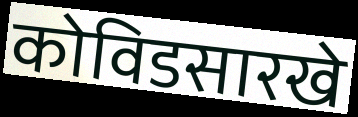
कोविडसारखे